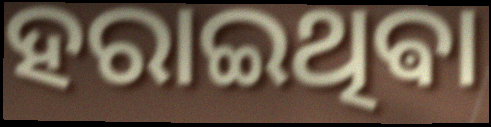
ହରାଇଥିଵା